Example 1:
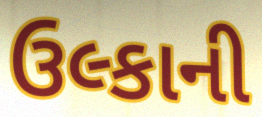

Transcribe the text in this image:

ઉલ્કાની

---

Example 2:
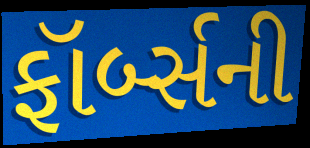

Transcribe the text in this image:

ફૉર્બ્સની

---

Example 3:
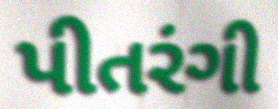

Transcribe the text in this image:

પીતરંગી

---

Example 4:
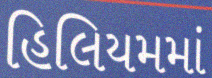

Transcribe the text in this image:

હિલિયમમાં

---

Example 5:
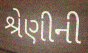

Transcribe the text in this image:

શ્રેણીની